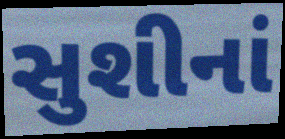
સુશીનાં